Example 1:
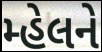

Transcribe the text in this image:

મ્હેલને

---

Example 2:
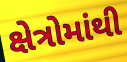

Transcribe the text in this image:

ક્ષેત્રોમાંથી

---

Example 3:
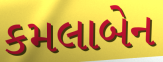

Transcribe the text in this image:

કમલાબેન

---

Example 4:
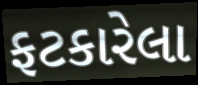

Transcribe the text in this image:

ફટકારેલા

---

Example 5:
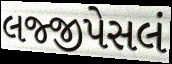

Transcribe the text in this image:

લજ્જીપેસલં